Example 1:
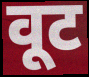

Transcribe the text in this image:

वूट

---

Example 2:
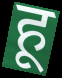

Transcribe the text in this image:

हू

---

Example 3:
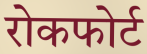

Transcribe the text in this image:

रोकफोर्ट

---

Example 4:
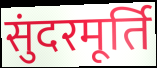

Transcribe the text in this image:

सुंदरमूर्ति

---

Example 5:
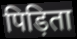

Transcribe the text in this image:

पिड़िता